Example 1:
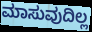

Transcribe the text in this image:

ಮಾಸುವುದಿಲ್ಲ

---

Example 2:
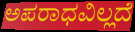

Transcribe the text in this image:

ಅಪರಾಧವಿಲ್ಲದೆ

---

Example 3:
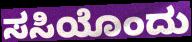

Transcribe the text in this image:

ಸಸಿಯೊಂದು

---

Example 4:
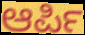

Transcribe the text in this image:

ಆರ್ಪಿ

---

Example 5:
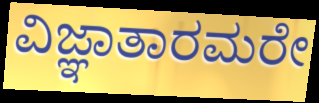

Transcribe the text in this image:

ವಿಜ್ಞಾತಾರಮರೇ